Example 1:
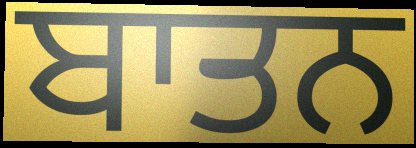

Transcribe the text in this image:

ਬਾਤਨ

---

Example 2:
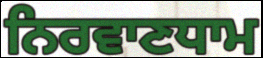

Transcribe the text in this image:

ਨਿਰਵਾਣਧਾਮ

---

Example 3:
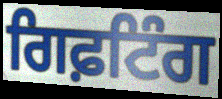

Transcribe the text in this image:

ਗਿਫ਼ਟਿੰਗ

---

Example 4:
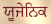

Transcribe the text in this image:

ਯੂਜੇਨਿਕ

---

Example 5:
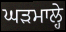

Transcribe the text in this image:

ਘੜਮਾਲ੍ਹੇ